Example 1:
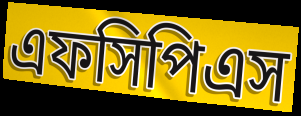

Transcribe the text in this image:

এফসিপিএস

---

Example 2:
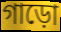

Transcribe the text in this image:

গাড়ো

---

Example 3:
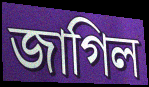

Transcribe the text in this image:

জাগিল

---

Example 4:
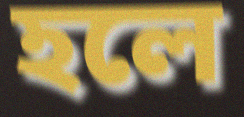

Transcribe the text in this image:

হলে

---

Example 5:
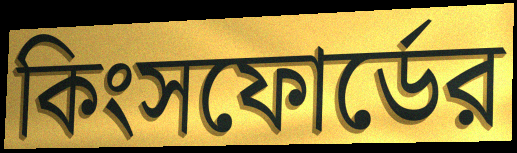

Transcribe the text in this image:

কিংসফোর্ডের